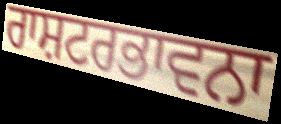
ਰਾਸ਼ਟਰਭਾਵਨਾ